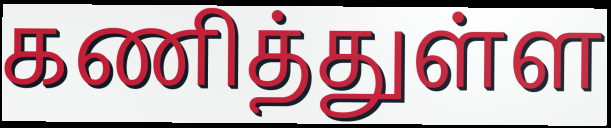
கணித்துள்ள